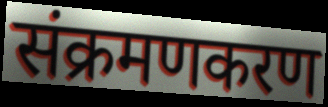
संक्रमणकरण